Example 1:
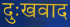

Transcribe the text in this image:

दुःखवाद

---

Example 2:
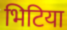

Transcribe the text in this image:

भिटिया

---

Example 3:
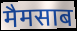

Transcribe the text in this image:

मैमसाब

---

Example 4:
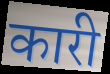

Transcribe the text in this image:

कारी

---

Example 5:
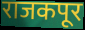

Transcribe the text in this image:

राजकपूर